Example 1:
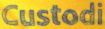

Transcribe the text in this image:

Custodi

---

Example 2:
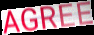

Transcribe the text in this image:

AGREE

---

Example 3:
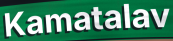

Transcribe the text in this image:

Kamatalav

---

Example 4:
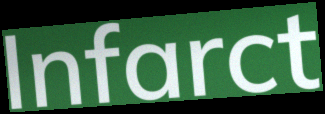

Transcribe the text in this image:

Infarct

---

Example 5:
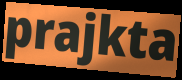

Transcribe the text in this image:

prajkta